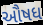
ઔષધ